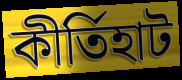
কীর্তিহাট